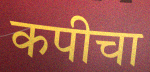
कपीचा